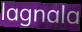
lagnala